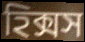
হিক্সস